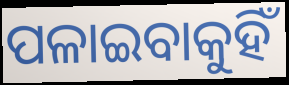
ପଳାଇବାକୁହିଁ